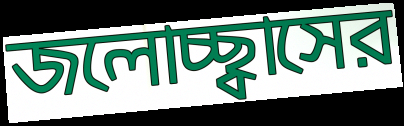
জলোচ্ছ্বাসের